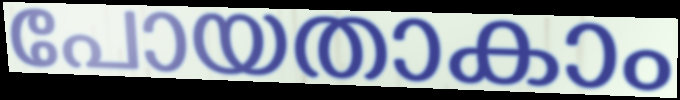
പോയതാകാം